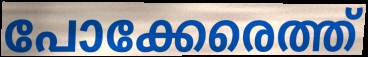
പോക്കേരെത്ത്